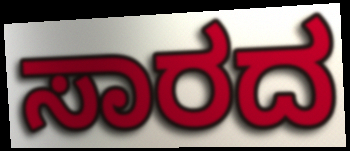
ಸಾರದ